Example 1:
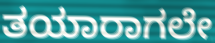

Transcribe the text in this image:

ತಯಾರಾಗಲೇ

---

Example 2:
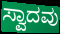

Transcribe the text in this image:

ಸ್ವಾದವು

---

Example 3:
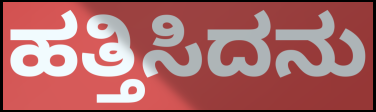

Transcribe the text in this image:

ಹತ್ತಿಸಿದನು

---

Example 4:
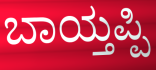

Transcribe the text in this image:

ಬಾಯ್ತಪ್ಪಿ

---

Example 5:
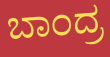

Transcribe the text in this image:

ಬಾಂದ್ರ